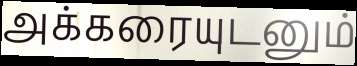
அக்கரையுடனும்